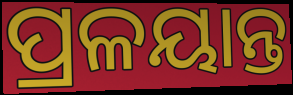
ପ୍ରଳୟାନ୍ତ